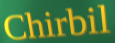
Chirbil